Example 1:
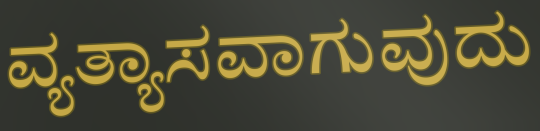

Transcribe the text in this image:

ವ್ಯತ್ಯಾಸವಾಗುವುದು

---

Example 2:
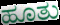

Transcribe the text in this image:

ಹೂತು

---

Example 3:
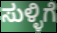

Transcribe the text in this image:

ಸುಳ್ಳಿಗೆ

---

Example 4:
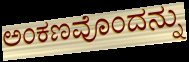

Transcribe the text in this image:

ಅಂಕಣವೊಂದನ್ನು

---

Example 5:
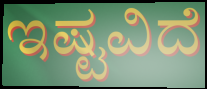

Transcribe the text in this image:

ಇಷ್ಟವಿದೆ